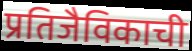
प्रतिजैविकाची